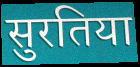
सुरतिया